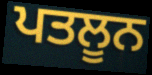
ਪਤਲੂਨ